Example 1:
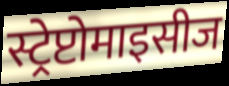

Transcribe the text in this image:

स्ट्रेप्टोमाइसीज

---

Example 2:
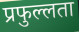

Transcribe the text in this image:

प्रफुल्लता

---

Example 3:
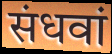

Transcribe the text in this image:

संधवां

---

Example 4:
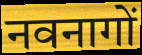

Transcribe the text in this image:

नवनागों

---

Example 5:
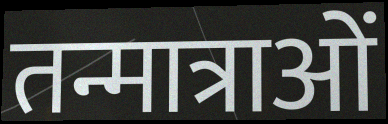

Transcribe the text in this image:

तन्मात्राओं